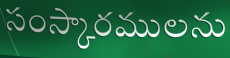
సంస్కారములను